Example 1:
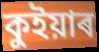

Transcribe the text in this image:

কুইয়াৰ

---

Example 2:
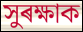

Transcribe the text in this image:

সুৰক্ষাক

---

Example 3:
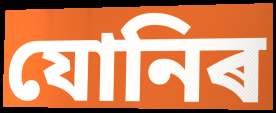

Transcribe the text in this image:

যোনিৰ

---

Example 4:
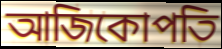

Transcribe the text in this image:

আজিকোপতি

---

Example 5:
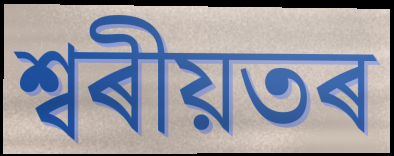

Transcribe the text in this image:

শ্বৰীয়তৰ